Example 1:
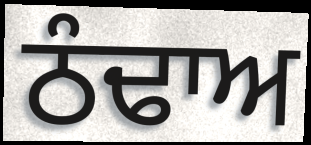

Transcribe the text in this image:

ਠੰਢਾਅ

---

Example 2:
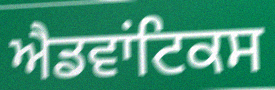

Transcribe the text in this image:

ਐਡਵਾਂਟਿਕਸ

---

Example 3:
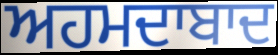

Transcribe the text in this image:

ਅਹਮਦਾਬਾਦ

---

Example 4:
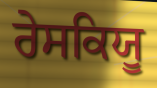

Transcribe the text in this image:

ਰੇਸਕਿਯੂ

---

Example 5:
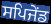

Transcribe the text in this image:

ਸਪਿਜੇਂਡ